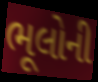
ભૂલોની